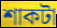
শাকটা